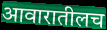
आवारातीलच